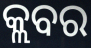
କ୍ଲବର